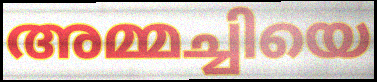
അമ്മച്ചിയെ